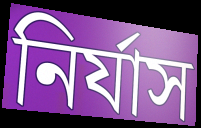
নিৰ্যাস